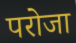
परोजा